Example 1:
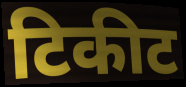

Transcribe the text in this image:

टिकीट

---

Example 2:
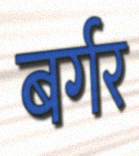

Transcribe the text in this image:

बर्गर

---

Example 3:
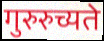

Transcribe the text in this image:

गुरुरुच्यते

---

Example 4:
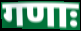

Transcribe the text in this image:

गणाः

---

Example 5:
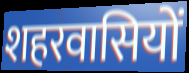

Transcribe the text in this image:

शहरवासियों